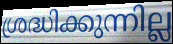
ശ്രദ്ധിക്കുന്നില്ല